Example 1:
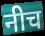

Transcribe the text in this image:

नीच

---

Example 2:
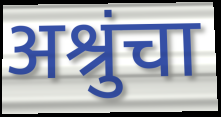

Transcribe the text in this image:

अश्रुंचा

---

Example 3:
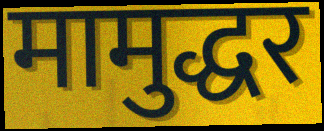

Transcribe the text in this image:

मामुद्धर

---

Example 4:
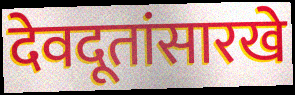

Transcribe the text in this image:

देवदूतांसारखे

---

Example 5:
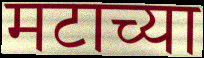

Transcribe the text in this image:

मटाच्या